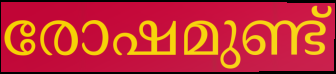
രോഷമുണ്ട്